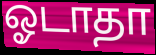
ஓடாதா